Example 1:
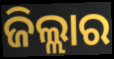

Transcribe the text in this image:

ଜିଲ୍ଲାର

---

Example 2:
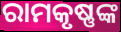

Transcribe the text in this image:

ରାମକୃଷ୍ଣଙ୍କ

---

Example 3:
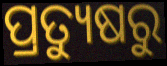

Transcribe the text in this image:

ପ୍ରତ୍ୟୁଷରୁ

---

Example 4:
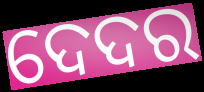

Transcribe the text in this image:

ଦେଦର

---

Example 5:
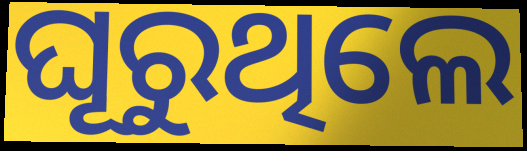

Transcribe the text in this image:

ଘୂରୁଥିଲେ